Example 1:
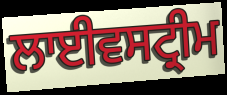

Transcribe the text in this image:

ਲਾਈਵਸਟ੍ਰੀਮ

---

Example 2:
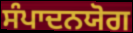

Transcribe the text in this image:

ਸੰਪਾਦਨਯੋਗ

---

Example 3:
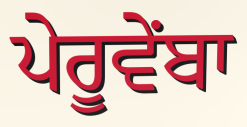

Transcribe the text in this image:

ਪੇਰੂਵੇਂਬਾ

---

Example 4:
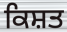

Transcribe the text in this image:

ਕਿਸ਼ਤ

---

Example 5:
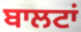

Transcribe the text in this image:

ਬਾਲਟਾਂ